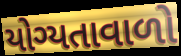
યોગ્યતાવાળો